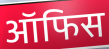
ऑफिस